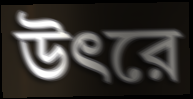
উৎরে